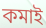
কমাই